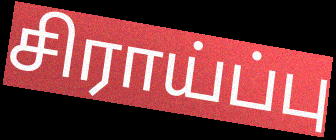
சிராய்ப்பு